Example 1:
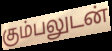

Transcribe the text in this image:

கும்பலுடன்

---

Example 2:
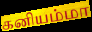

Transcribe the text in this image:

கனியம்மா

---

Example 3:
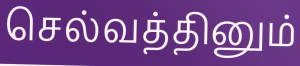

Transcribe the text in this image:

செல்வத்தினும்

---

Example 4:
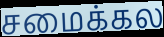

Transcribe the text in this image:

சமைக்கல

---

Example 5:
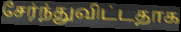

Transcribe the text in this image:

சேர்ந்துவிட்டதாக